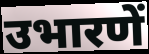
उभारणें